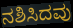
ನಶಿಸಿದವು